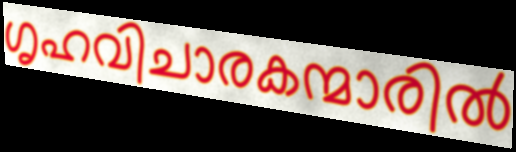
ഗൃഹവിചാരകന്മാരിൽ